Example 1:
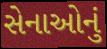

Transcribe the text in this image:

સેનાઓનું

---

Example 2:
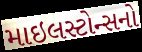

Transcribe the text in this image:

માઇલસ્ટોન્સનો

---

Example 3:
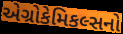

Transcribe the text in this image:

એગ્રોકેમિકલ્સનો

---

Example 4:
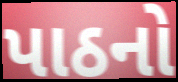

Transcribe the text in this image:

પાઠનો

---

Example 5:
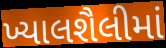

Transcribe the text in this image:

ખ્યાલશૈલીમાં